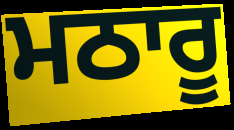
ਮਠਾਰੂ